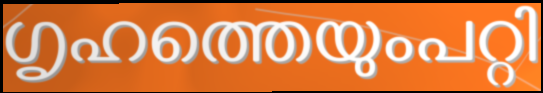
ഗൃഹത്തെയുംപറ്റി